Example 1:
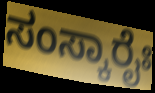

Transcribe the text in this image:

ಸಂಸ್ಕಾರೈಃ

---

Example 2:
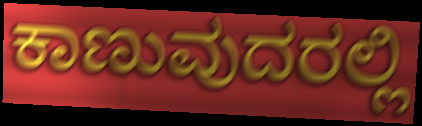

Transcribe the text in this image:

ಕಾಣುವುದರಲ್ಲಿ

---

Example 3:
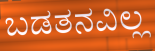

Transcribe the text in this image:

ಬಡತನವಿಲ್ಲ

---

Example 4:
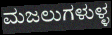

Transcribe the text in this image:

ಮಜಲುಗಳುಳ್ಳ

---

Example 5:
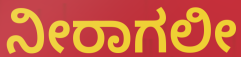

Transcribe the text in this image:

ನೀರಾಗಲೀ